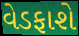
વેડફાશે